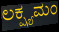
ಲಕ್ಷ್ಯಮಂ